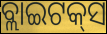
ବ୍ଲାଇଟକ୍‌ସ